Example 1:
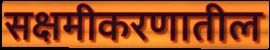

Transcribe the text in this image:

सक्षमीकरणातील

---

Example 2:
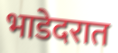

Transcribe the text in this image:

भाडेदरात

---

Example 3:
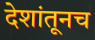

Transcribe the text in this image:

देशांतूनच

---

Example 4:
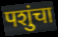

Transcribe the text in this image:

पशुंचा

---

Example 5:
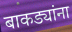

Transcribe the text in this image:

बाकड्यांना